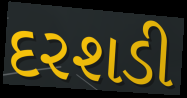
દરશડી